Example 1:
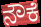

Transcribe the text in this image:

ನೌಕೆ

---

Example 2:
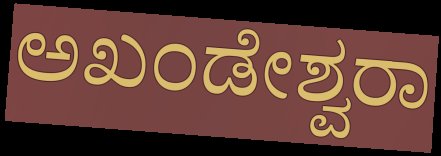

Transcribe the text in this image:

ಅಖಂಡೇಶ್ವರಾ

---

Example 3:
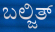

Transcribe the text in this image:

ಬಲ್ಜಿತ್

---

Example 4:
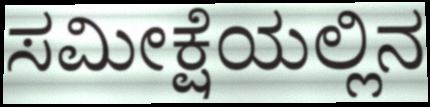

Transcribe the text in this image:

ಸಮೀಕ್ಷೆಯಲ್ಲಿನ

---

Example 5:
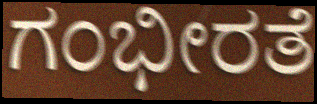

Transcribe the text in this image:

ಗಂಭೀರತೆ